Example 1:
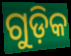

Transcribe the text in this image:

ଗୁଡ଼ିକ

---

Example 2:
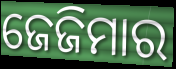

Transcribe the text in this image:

ଜେଜିମାର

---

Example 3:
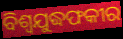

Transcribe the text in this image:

ବିଶ୍ୱଯୁଦ୍ଧଫକୀର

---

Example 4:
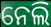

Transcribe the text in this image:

ନେଲି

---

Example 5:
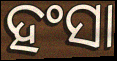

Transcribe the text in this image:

ହଂସା